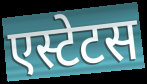
एस्टेटस